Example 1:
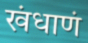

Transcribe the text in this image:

खंधाणं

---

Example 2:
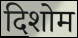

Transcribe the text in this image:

दिशोम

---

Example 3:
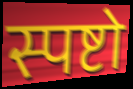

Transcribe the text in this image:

स्पष्टो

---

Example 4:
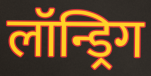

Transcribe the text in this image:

लॉन्ड्रिग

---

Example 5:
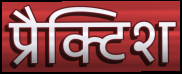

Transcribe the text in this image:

प्रैक्टिश